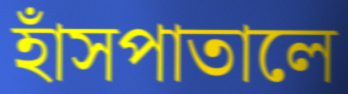
হাঁসপাতালে